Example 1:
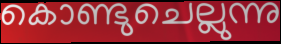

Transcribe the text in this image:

കൊണ്ടുചെല്ലുന്നു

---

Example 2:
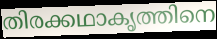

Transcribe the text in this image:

തിരക്കഥാകൃത്തിനെ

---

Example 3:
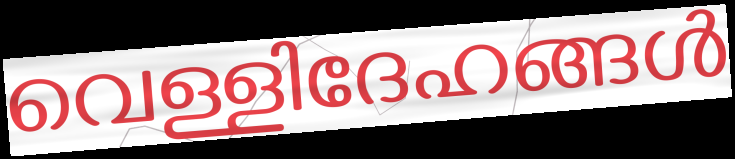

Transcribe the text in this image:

വെള്ളിദേഹങ്ങൾ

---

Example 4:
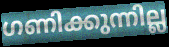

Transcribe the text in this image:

ഗണിക്കുന്നില്ല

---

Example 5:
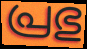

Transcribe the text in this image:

പ്രഭു